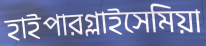
হাইপারগ্লাইসেমিয়া